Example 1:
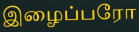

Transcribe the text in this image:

இழைப்பரோ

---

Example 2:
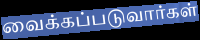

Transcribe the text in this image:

வைக்கப்படுவார்கள்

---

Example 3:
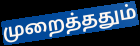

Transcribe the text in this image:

முறைத்ததும்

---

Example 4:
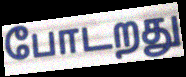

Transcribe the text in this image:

போடறது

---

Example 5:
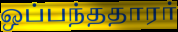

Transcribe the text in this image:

ஒப்பந்ததாரர்